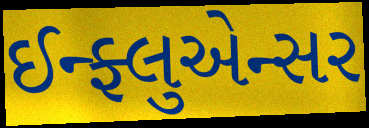
ઈન્ફ્લુએન્સર